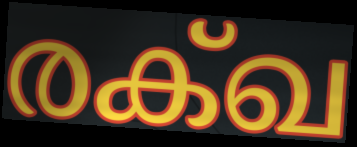
രക്ഖ